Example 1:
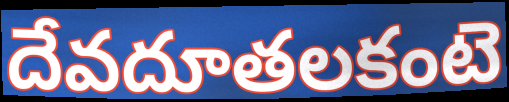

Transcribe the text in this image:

దేవదూతలకంటె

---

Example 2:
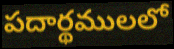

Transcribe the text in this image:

పదార్థములలో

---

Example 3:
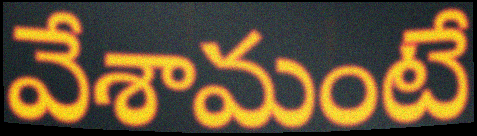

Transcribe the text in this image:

వేశామంటే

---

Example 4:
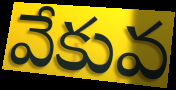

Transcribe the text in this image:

వేకువ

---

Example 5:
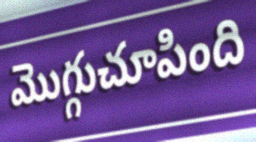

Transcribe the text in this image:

మొగ్గుచూపింది